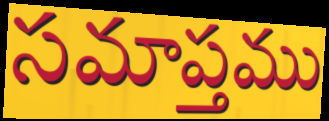
సమాప్తము